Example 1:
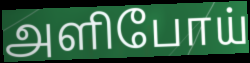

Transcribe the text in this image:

அளிபோய்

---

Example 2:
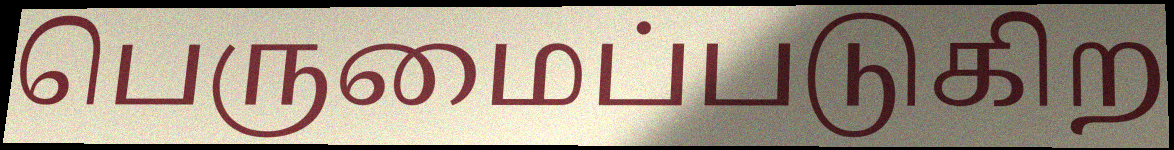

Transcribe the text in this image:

பெருமைப்படுகிற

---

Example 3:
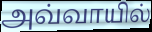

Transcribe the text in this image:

அவ்வாயில்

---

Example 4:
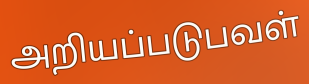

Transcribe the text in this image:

அறியப்படுபவள்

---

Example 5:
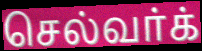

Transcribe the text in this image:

செல்வர்க்